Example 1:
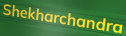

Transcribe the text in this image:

Shekharchandra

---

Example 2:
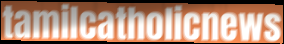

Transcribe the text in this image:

tamilcatholicnews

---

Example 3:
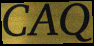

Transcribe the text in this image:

CAQ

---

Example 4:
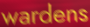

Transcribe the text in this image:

wardens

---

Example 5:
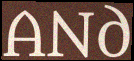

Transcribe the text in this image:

ANd